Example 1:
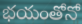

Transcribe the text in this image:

భయంతోనో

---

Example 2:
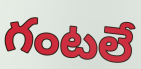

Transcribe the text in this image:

గంటలే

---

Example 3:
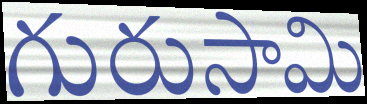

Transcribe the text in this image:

గురుసామి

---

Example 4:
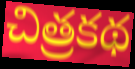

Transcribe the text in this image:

చిత్రకథ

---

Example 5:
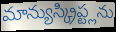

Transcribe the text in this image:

మాన్యుస్క్రిప్ట్లను